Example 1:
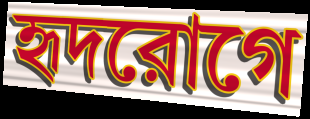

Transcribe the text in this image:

হৃদরোগে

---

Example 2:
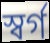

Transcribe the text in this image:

স্বর্গ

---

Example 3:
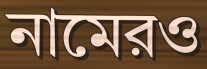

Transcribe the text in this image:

নামেরও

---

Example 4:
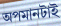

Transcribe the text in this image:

অপমানটাই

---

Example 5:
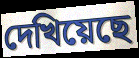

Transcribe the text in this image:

দেখিয়েছে